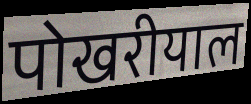
पोखरीयाल